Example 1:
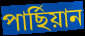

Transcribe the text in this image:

পাৰ্ছিয়ান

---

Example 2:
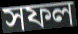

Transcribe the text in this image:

সফল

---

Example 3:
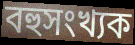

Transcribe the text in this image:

বহুসংখ্যক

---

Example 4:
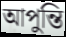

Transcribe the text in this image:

আপুন্তি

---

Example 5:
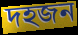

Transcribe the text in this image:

দহজন